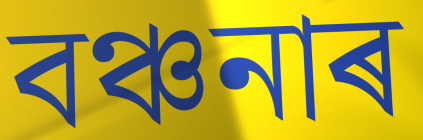
বঞ্চনাৰ